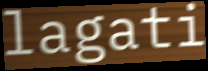
lagati